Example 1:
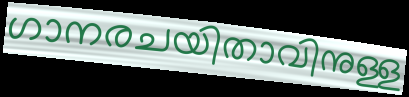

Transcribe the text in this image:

ഗാനരചയിതാവിനുള്ള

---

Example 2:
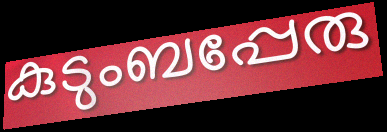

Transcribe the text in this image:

കുടുംബപ്പേരു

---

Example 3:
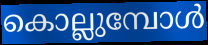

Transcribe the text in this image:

കൊല്ലുമ്പോൾ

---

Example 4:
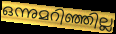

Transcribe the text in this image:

ഒന്നുമറിഞ്ഞില്ല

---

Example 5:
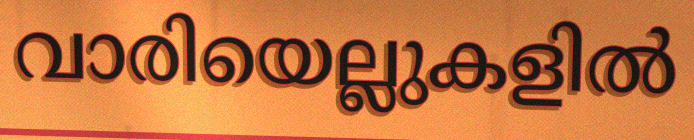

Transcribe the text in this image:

വാരിയെല്ലുകളിൽ